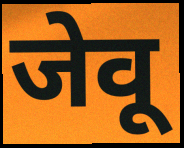
जेवू